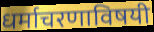
धर्माचरणाविषयी